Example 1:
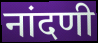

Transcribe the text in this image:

नांदणी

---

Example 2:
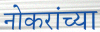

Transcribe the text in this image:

नोकरांच्या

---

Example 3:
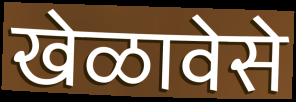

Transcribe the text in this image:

खेळावेसे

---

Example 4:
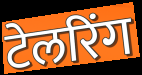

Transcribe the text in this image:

टेलरिंग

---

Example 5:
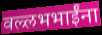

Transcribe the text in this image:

वल्लभभाईंना